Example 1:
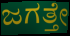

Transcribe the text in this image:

ಜಗತ್ತೇ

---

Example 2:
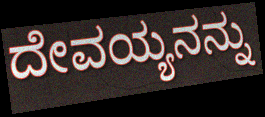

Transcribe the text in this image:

ದೇವಯ್ಯನನ್ನು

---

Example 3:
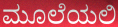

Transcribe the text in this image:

ಮೂಲೆಯಲಿ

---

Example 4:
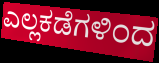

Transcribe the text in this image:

ಎಲ್ಲಕಡೆಗಳಿಂದ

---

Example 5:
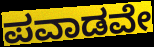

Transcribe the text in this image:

ಪವಾಡವೇ